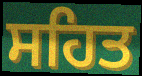
ਸਹਿਤ